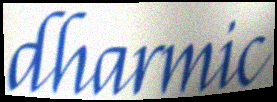
dharmic